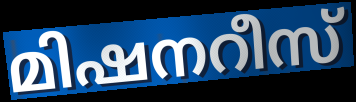
മിഷനറീസ്